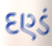
દણ્ડં